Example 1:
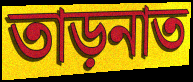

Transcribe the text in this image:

তাড়নাত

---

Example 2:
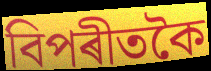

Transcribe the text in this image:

বিপৰীতকৈ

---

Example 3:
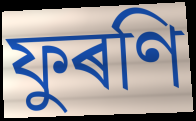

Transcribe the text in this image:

ফুৰণি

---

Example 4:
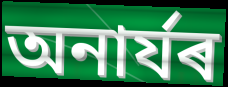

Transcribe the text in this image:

অনাৰ্যৰ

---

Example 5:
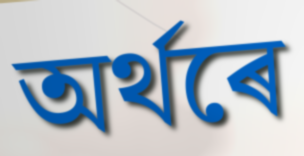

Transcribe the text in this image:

অৰ্থৰে